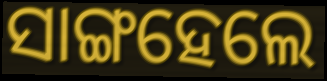
ସାଙ୍ଗହେଲେ